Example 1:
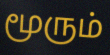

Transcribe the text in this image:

மூரும்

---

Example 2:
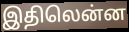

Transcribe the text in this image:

இதிலென்ன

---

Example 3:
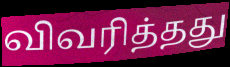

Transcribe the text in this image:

விவரித்தது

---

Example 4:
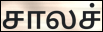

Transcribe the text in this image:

சாலச்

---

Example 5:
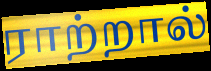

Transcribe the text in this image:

ராற்றால்